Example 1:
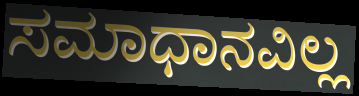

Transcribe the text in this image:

ಸಮಾಧಾನವಿಲ್ಲ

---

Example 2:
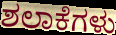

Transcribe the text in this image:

ಶಲಾಕೆಗಳು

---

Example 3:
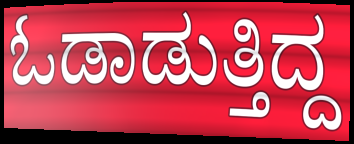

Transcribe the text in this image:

ಓಡಾಡುತ್ತಿದ್ದ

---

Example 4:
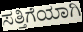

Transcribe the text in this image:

ಸತ್ತಿಗೆಯಾಗಿ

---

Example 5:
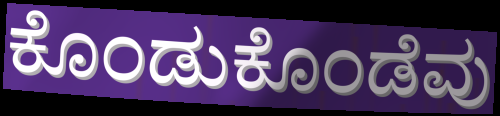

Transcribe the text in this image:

ಕೊಂಡುಕೊಂಡೆವು